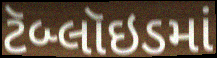
ટૅબ્લૉઇડમાં